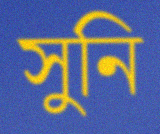
সুনি